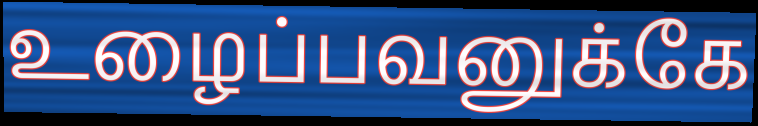
உழைப்பவனுக்கே